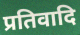
प्रतिवादि